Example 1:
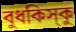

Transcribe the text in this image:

বুধকিস্‌কু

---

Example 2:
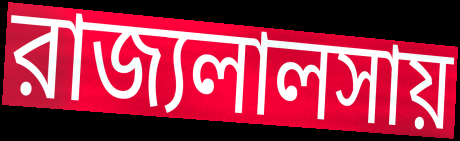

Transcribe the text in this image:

রাজ্যলালসায়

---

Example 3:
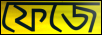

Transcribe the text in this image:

ফেজে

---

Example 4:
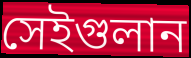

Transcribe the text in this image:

সেইগুলান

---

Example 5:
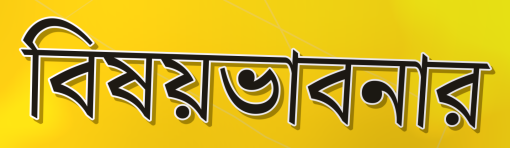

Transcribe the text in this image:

বিষয়ভাবনার